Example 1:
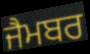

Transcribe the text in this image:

ਜੈਮਬਰ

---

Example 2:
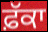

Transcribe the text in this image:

ਫ਼ੱਕਾ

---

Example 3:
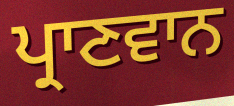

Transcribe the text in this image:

ਪ੍ਰਾਣਵਾਨ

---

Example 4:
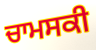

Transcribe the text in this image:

ਚਾਮਸਕੀ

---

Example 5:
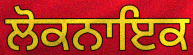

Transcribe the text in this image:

ਲੋਕਨਾਇਕ